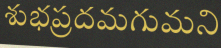
శుభప్రదమగుమని